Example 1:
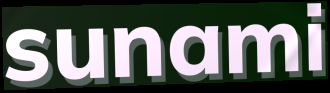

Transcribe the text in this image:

sunami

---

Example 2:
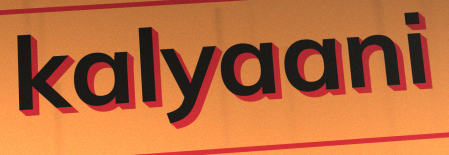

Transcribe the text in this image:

kalyaani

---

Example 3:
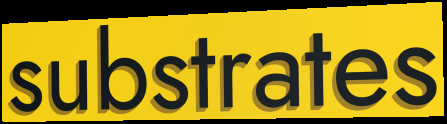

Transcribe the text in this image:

substrates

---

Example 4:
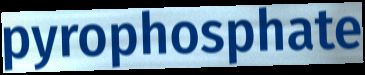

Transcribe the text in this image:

pyrophosphate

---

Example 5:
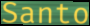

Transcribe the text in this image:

Santo